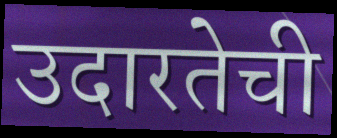
उदारतेची